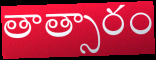
తాత్సారం